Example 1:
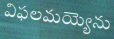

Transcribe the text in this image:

విఫలమయ్యెను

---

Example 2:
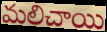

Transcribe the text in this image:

మలిచాయి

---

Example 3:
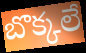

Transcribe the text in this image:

బొక్కలే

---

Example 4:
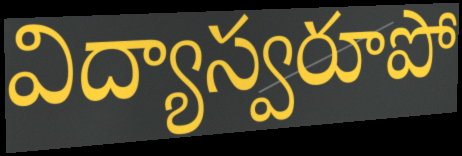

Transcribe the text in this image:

విద్యాస్వరూపో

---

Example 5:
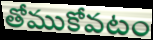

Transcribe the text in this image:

తోముకోవటం